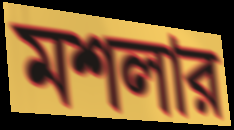
মশলার